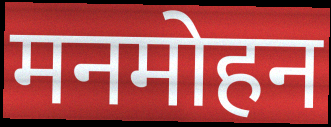
मनमोहन